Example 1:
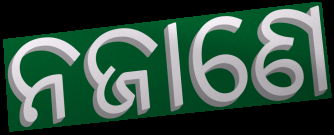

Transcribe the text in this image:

ନଜାଣେ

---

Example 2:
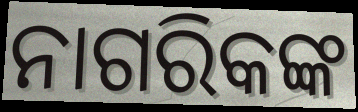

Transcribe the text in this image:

ନାଗରିକଙ୍କ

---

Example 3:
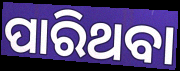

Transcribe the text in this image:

ପାରିଥବା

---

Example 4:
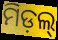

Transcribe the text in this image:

ମିଡ଼ଲ୍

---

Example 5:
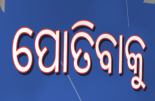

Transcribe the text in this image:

ପୋତିବାକୁ